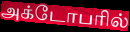
அக்டோபரில்